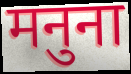
मनुना